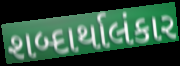
શબ્દાર્થાલંકાર